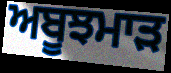
ਅਬੂਝਮਾੜ